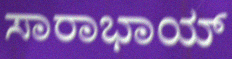
ಸಾರಾಭಾಯ್